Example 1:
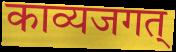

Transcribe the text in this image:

काव्यजगत्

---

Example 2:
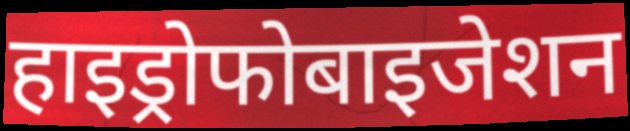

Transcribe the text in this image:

हाइड्रोफोबाइजेशन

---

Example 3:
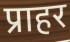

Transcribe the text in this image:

प्राहर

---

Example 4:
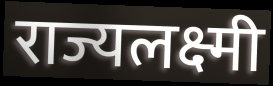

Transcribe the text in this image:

राज्यलक्ष्मी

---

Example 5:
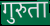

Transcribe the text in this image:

गुरुता